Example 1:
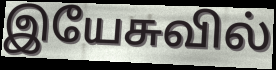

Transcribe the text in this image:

இயேசுவில்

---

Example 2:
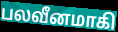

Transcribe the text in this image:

பலவீனமாகி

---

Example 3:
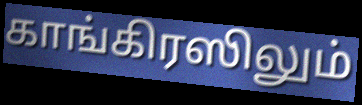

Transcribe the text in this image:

காங்கிரஸிலும்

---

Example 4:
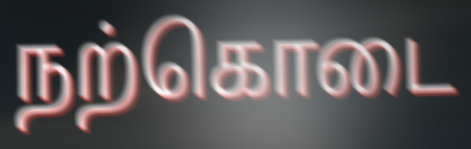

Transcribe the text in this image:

நற்கொடை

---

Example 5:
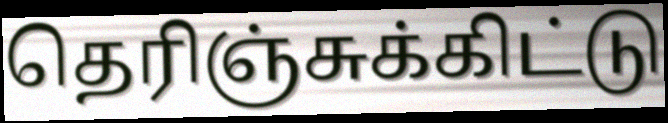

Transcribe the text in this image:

தெரிஞ்சுக்கிட்டு